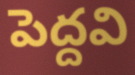
పెద్దవి